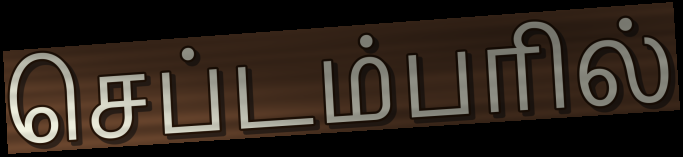
செப்டம்பரில்